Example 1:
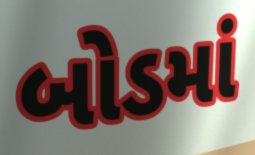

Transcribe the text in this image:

બોડમાં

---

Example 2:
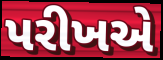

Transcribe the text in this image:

પરીખએ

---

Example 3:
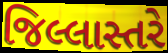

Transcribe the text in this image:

જિલ્લાસ્તરે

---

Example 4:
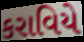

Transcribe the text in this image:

કરાવિયે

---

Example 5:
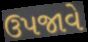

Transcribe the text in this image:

ઉપજાવે